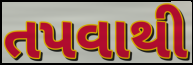
તપવાથી